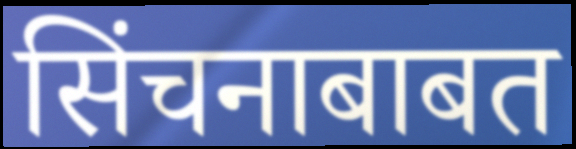
सिंचनाबाबत